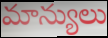
మాన్యులు